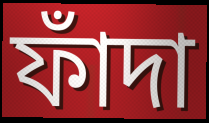
ফাঁদা